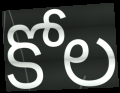
కోల